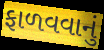
ફાળવવાનું